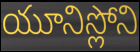
యూనిస్లోని